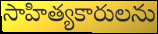
సాహిత్యకారులను